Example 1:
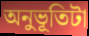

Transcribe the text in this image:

অনুভূতিটা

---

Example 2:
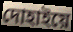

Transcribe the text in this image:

দোহাইয়ে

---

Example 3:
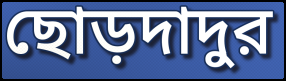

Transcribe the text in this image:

ছোড়দাদুর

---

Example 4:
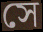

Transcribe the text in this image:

সে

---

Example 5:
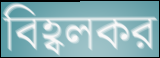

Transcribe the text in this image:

বিহ্বলকর